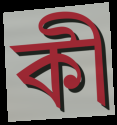
কী